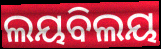
ଲୟବିଲୟ